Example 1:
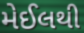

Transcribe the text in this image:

મેઈલથી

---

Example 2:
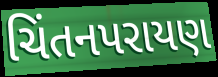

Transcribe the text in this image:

ચિંતનપરાયણ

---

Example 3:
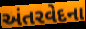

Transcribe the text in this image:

અંતરવેદના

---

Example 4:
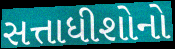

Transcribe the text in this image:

સત્તાધીશોનો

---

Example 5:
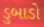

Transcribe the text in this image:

ડુબાડો